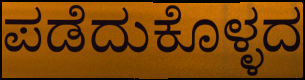
ಪಡೆದುಕೊಳ್ಳದ